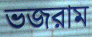
ভজরাম